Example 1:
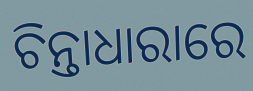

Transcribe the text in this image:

ଚିନ୍ତାଧାରାରେ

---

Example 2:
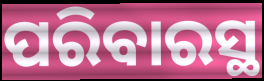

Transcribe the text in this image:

ପରିବାରସ୍ଥ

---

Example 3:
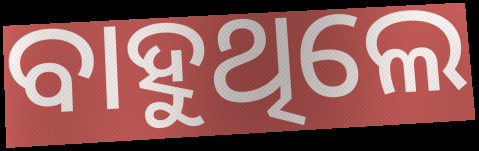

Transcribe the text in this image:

ବାହୁଥିଲେ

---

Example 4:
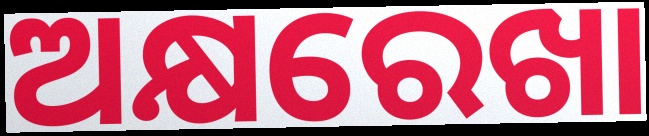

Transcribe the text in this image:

ଅକ୍ଷରେଖା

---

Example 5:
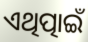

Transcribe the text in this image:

ଏଥିତ୍ପାଇଁ